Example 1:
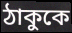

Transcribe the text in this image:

ঠাকুকে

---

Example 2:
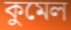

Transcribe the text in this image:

কুমেল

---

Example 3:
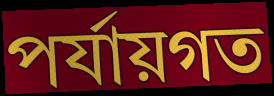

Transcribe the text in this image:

পর্যায়গত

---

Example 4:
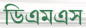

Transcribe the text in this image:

ডিএমএস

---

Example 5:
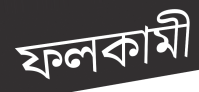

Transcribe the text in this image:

ফলকামী